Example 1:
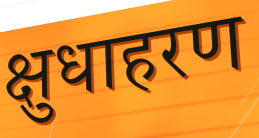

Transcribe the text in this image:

क्षुधाहरण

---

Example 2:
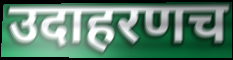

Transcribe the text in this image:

उदाहरणच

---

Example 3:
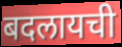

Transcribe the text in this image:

बदलायची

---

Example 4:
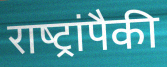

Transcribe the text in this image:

राष्ट्रांपैकी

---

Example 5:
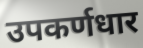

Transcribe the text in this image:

उपकर्णधार